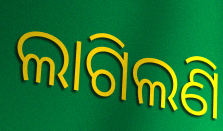
ଲାଗିଲଣି